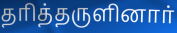
தரித்தருளினார்